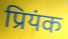
प्रियंक